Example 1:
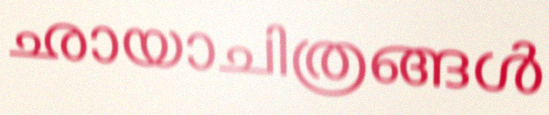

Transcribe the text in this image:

ഛായാചിത്രങ്ങൾ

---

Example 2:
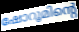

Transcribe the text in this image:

ഷോറൂമിന്റെ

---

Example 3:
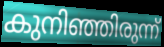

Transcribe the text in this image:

കുനിഞ്ഞിരുന്ന്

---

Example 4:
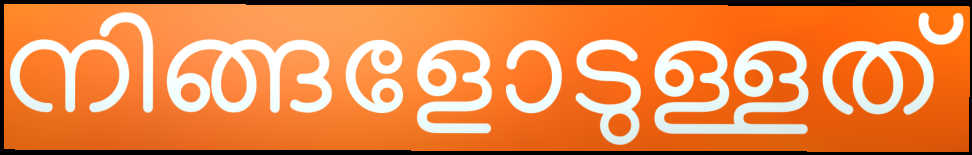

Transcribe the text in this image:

നിങ്ങളോടുള്ളത്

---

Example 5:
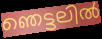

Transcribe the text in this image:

ഞെട്ടലിൽ